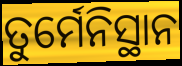
ତୁର୍ମେନିସ୍ଥାନ